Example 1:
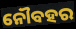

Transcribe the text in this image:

ନୌବହର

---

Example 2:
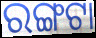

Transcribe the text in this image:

ରଙ୍ଗଟା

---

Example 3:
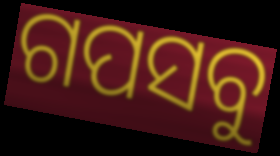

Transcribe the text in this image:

ଗପସବୁ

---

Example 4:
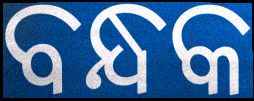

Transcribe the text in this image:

ବନ୍ଧକ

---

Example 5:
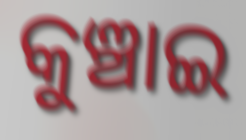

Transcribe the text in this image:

କୁଞ୍ଚାଇ